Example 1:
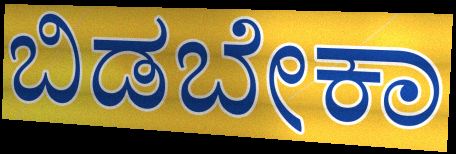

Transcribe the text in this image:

ಬಿಡಬೇಕಾ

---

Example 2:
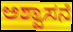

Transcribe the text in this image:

ಅಶ್ವಾಸನೆ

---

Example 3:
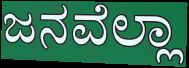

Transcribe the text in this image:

ಜನವೆಲ್ಲಾ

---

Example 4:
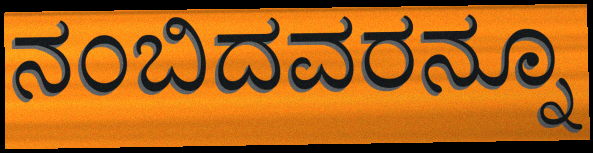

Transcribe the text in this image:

ನಂಬಿದವರನ್ನೂ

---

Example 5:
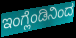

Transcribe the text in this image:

ಇಂಗ್ಲೆಂಡಿನಿಂದ